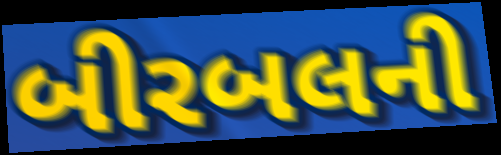
બીરબલની